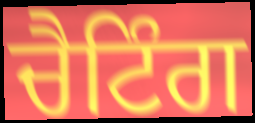
ਚੈਟਿੰਗ